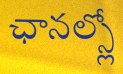
ఛానల్స్లో